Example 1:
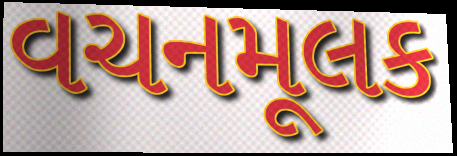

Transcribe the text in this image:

વચનમૂલક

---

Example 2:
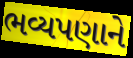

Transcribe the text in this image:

ભવ્યપણાને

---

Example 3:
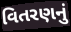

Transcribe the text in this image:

વિતરણનું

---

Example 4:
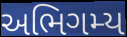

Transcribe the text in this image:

અભિગમ્ય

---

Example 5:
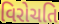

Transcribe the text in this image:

વિરોચતિ